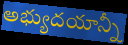
అభ్యుదయాన్నీ